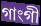
গাংগী